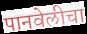
पानवेलीचा